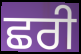
ਛਰੀ